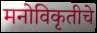
मनोविकृतीचे